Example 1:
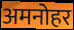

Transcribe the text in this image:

अमनोहर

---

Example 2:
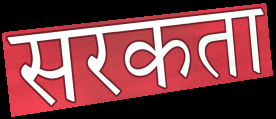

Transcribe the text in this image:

सरकता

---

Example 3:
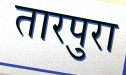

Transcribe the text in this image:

तारपुरा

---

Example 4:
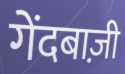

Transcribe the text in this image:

गेंदबाज़ी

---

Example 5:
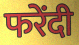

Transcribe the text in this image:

फरेंदी